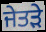
ਜੇਤੜੇ